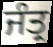
ਜੰਤ੍ਰ